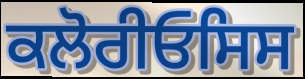
ਕਲੋਰੀਓਸਿਸ